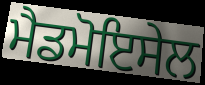
ਮੈਡਮੋਇਸੇਲ